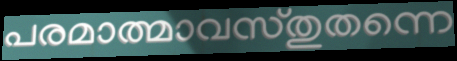
പരമാത്മാവസ്തുതന്നെ